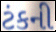
ટંકની